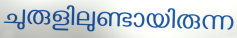
ചുരുളിലുണ്ടായിരുന്ന